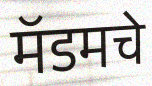
मॅडमचे